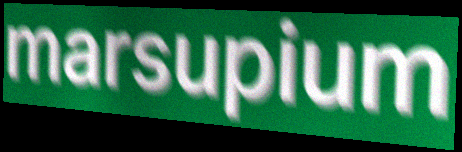
marsupium